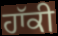
ਹਾੱਕੀ